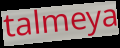
talmeya